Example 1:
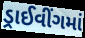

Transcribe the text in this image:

ડ્રાઈવીંગમાં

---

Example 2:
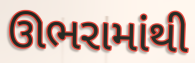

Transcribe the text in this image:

ઊભરામાંથી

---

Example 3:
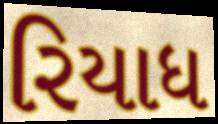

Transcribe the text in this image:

રિયાધ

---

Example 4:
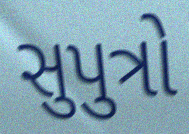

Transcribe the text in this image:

સુપુત્રો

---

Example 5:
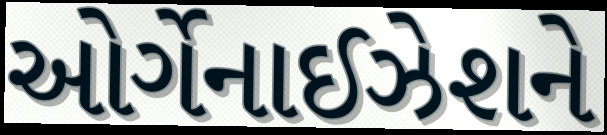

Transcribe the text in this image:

ઓર્ગેનાઈઝેશને